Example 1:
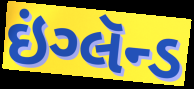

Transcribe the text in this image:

ઇંગ્લૅન્ડ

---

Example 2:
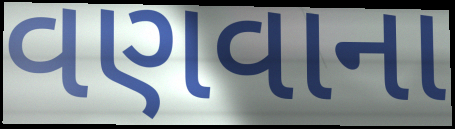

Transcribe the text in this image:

વણવાના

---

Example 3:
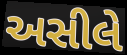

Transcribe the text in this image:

અસીલે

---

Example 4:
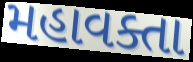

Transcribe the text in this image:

મહાવક્તા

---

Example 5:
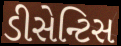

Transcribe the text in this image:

ડીસેન્ટિસ